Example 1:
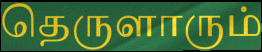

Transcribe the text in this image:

தெருளாரும்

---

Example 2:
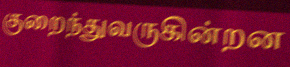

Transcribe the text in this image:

குறைந்துவருகின்றன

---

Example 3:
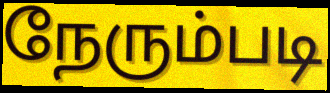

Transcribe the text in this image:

நேரும்படி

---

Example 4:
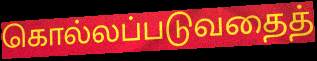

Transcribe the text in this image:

கொல்லப்படுவதைத்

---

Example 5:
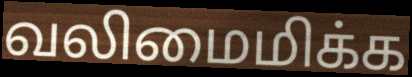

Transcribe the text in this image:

வலிமைமிக்க